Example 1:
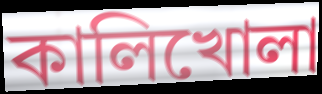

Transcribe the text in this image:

কালিখোলা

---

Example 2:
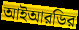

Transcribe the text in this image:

আইআরডির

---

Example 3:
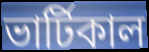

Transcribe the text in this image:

ভার্টিকাল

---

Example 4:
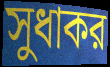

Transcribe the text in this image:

সুধাকর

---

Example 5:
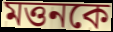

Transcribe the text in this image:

মত্তনকে